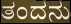
ತಂದನು